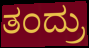
ತಂದ್ರು